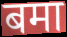
बमा